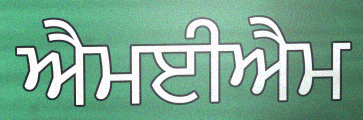
ਐਮਈਐਮ